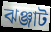
ঝঞ্জাট